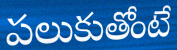
పలుకుతోంటే